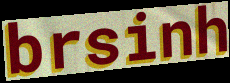
brsinh